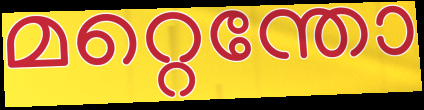
മറ്റെന്തോ